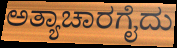
ಅತ್ಯಾಚಾರಗೈದು